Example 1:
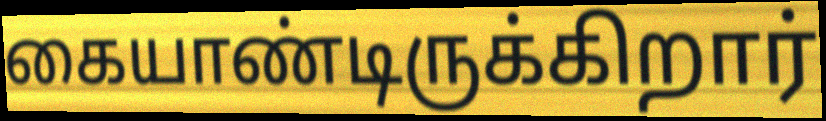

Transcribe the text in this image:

கையாண்டிருக்கிறார்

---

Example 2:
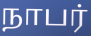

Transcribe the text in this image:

நாபர்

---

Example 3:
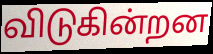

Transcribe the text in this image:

விடுகின்றன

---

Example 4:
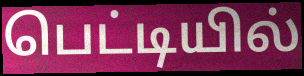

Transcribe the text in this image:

பெட்டியில்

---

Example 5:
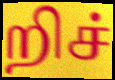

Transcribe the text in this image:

றிச்